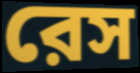
রেস